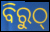
ବିରୁଠ୍